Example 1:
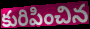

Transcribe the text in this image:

కురిపించిన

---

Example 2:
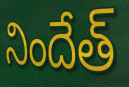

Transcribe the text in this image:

నిందేత్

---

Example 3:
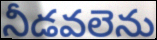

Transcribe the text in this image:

నీడవలెను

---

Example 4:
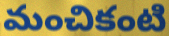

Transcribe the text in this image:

మంచికంటి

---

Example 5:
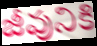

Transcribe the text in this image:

జీవునికి